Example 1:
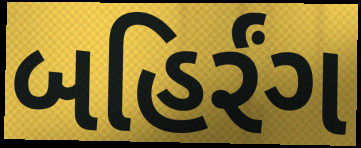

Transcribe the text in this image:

બહિર્રંગ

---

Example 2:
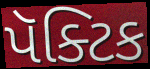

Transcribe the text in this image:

પૅક્ટિક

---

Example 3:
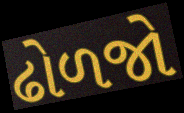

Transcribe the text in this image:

ઢોળજો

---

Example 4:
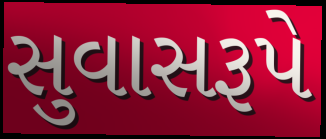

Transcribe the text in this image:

સુવાસરૂપે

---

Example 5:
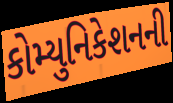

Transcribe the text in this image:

કોમ્યુનિકેશનની